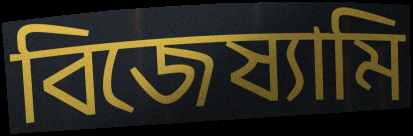
বিজেষ্যামি